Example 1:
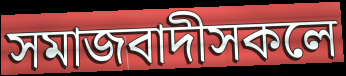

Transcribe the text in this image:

সমাজবাদীসকলে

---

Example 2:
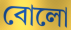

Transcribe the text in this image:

বোলো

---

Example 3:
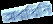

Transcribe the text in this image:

আধাখিনি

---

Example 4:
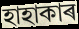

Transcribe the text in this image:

হাহাকাৰ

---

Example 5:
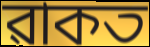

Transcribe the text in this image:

ৱাকত